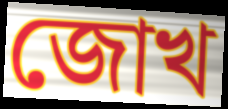
জোখ